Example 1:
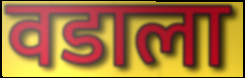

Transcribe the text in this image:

वडाला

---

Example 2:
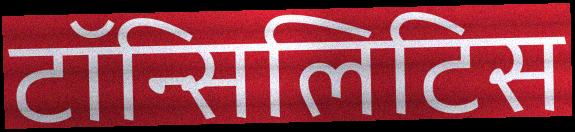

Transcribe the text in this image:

टॉन्सिलिटिस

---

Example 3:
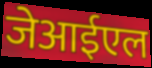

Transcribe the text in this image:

जेआईएल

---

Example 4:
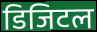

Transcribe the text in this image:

डिजिटल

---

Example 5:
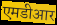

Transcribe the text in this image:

एमडीआर